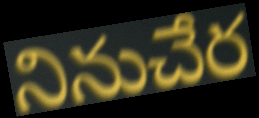
నినుచేర